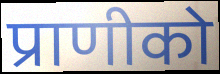
प्राणीको